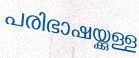
പരിഭാഷയ്ക്കുള്ള